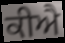
ਕੀਐ